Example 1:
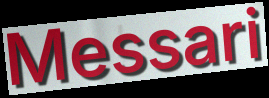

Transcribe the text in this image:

Messari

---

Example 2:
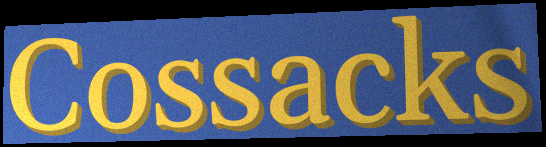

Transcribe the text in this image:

Cossacks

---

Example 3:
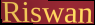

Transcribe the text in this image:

Riswan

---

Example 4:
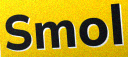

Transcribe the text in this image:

Smol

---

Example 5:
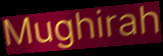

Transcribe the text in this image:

Mughirah